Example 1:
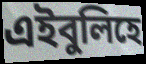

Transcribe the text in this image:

এইবুলিহে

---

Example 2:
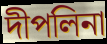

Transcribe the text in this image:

দীপলিনা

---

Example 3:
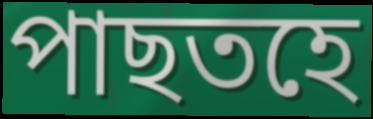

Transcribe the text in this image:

পাছতহে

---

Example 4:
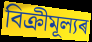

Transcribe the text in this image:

বিক্ৰীমূল্যৰ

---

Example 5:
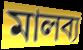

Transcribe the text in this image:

মালব্য